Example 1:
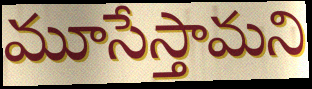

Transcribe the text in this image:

మూసేస్తామని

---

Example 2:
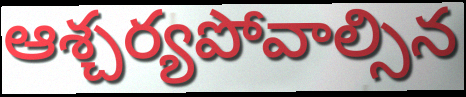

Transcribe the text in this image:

ఆశ్చర్యపోవాల్సిన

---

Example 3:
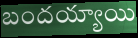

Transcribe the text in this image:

బందయ్యాయి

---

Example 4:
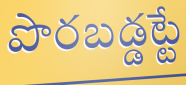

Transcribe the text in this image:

పొరబడ్డట్టే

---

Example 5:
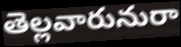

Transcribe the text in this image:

తెల్లవారునురా